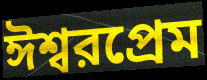
ঈশ্বরপ্রেম